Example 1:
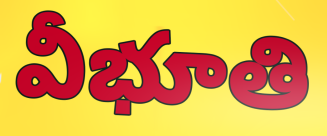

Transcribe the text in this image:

వీభూతి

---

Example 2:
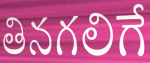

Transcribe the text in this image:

తినగలిగే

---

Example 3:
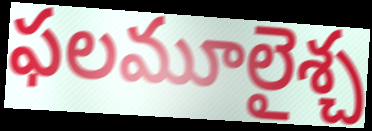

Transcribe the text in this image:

ఫలమూలైశ్చ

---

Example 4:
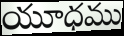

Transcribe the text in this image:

యూధము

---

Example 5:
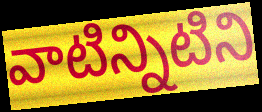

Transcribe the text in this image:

వాటిన్నిటిని